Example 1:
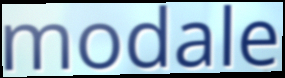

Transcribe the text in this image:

modale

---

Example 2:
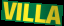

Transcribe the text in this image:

VILLA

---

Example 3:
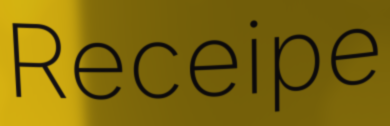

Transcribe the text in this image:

Receipe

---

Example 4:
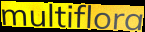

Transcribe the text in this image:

multiflora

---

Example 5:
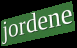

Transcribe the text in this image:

jordene